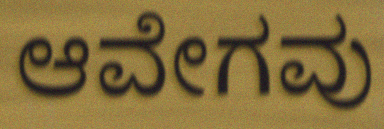
ಆವೇಗವು